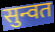
सुन्वत